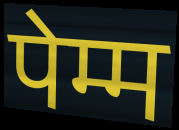
पेम्म